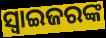
ସ୍ଵାଇଜରଙ୍କ